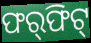
ଫର୍‍ଫିଟ୍